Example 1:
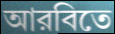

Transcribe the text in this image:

আরবিতে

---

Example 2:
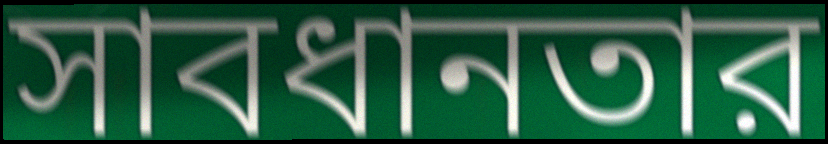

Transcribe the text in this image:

সাবধানতার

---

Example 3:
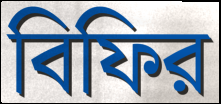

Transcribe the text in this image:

বিফির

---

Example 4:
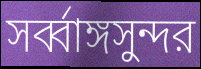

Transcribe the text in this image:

সর্ব্বাঙ্গসুন্দর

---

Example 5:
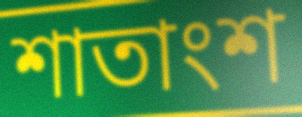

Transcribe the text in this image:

শাতাংশ